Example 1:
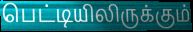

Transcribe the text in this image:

பெட்டியிலிருக்கும்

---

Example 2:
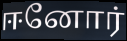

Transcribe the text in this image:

ஈனோர்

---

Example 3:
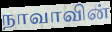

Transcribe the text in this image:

நாவாவின்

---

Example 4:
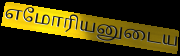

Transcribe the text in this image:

எமோரியனுடைய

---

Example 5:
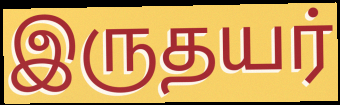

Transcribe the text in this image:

இருதயர்